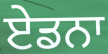
ਏਡਨਾ